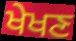
ਖੇਖਣ